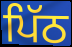
ਪਿੱਠ